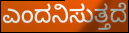
ಎಂದನಿಸುತ್ತದೆ